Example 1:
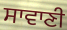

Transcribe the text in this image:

ਸਾਵਾਣੀ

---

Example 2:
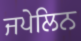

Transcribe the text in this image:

ਜਪੇਲਿਨ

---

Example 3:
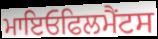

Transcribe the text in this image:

ਮਾਇਓਫਿਲਮੈਂਟਸ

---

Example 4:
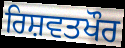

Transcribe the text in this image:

ਰਿਸ਼ਵਤਖੌਰ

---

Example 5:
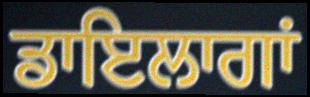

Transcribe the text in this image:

ਡਾਇਲਾਗਾਂ